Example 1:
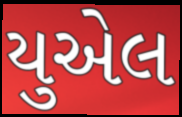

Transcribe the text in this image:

યુએલ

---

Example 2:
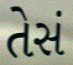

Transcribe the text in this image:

તેસં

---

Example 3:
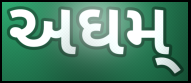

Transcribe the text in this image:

અઘમ્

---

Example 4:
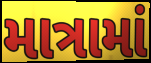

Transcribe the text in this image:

માત્રામાં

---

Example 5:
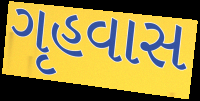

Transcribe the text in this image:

ગૃહવાસ